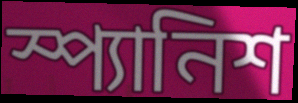
স্প্যানিশ